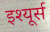
इश्यूर्स